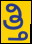
ತ್ತಿ